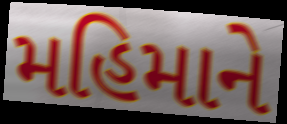
મહિમાને